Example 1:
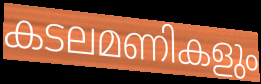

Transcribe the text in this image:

കടലമണികളും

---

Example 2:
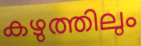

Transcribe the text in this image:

കഴുത്തിലും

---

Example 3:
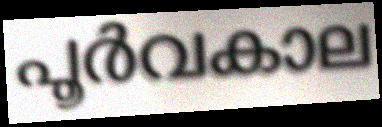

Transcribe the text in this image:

പൂർവകാല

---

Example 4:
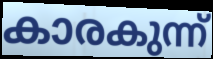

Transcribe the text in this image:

കാരകുന്ന്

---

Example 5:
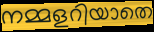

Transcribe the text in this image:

നമ്മളറിയാതെ